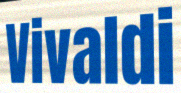
Vivaldi